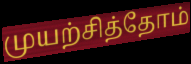
முயற்சித்தோம்